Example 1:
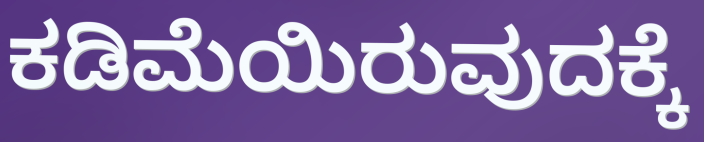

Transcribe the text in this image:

ಕಡಿಮೆಯಿರುವುದಕ್ಕೆ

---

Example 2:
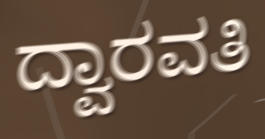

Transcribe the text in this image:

ದ್ವಾರವತಿ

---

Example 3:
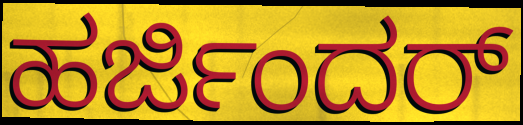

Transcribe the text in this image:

ಹರ್ಜಿಂದರ್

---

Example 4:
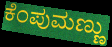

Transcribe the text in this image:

ಕೆಂಪುಮಣ್ಣು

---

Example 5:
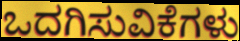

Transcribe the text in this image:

ಒದಗಿಸುವಿಕೆಗಳು